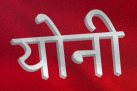
योनी